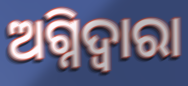
ଅଗ୍ନିଦ୍ଵାରା